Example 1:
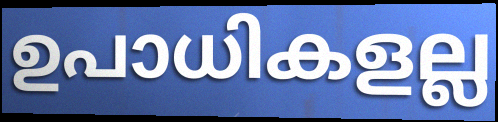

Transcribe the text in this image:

ഉപാധികളല്ല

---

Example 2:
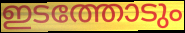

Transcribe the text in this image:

ഇടത്തോടും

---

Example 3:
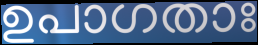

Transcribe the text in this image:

ഉപാഗതാഃ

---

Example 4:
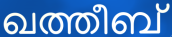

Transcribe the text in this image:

ഖത്തീബ്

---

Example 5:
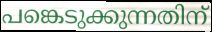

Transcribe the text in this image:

പങ്കെടുക്കുന്നതിന്